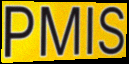
PMIS